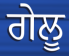
ਗੇਲੂ